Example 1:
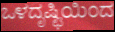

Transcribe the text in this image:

ಒಳದೃಷ್ಟಿಯಿಂದ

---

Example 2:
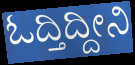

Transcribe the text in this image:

ಓದ್ತಿದ್ದೀನಿ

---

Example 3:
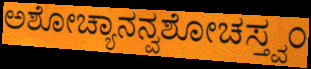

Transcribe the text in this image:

ಅಶೋಚ್ಯಾನನ್ವಶೋಚಸ್ತ್ವಂ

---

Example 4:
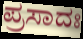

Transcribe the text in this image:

ಪ್ರಸಾದಃ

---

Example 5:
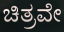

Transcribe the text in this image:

ಚಿತ್ರವೇ